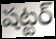
షట్టర్